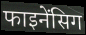
फाइनेंसिग